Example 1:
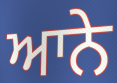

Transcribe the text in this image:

ਆਨੇ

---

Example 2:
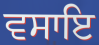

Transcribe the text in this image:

ਵਸਾਇ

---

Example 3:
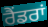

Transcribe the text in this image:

ਰੈਂਡਰਾਂ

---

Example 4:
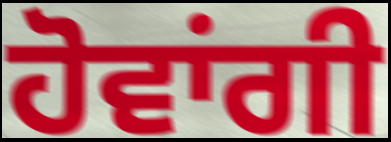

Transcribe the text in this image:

ਹੋਵਾਂਗੀ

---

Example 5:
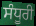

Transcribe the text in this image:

ਸੰਧੂਰੀ